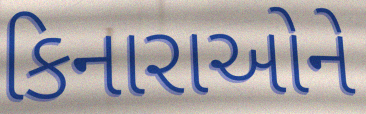
કિનારાઓને